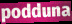
podduna